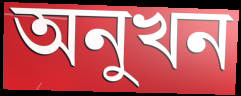
অনুখন